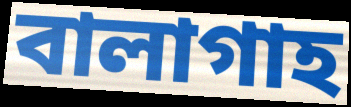
বালাগাহ